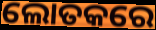
ଲୋତକରେ